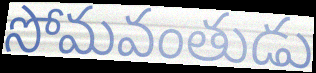
సోమవంతుడు